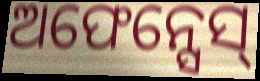
ଅଫେନ୍ସେସ୍